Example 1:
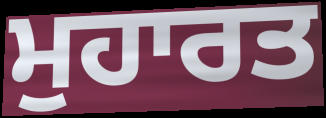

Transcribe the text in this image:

ਮੁਹਾਰਤ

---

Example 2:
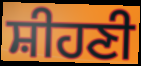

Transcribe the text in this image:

ਸ਼ੀਹਣੀ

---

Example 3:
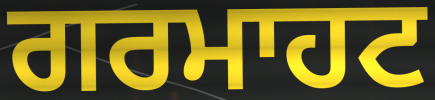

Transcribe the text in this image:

ਗਰਮਾਹਟ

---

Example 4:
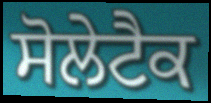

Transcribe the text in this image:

ਸੋਲੇਟੈਕ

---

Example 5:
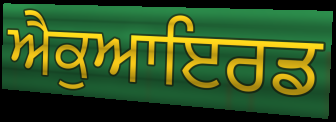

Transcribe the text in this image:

ਐਕੁਆਇਰਡ